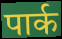
पार्क